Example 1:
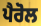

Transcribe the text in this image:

ਪੈਰੋਲ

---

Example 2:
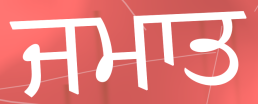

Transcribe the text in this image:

ਜਮਾਤ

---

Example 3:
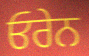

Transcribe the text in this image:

ਓਰੇਨ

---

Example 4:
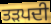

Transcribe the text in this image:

ਤੜਪਦੀ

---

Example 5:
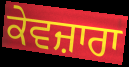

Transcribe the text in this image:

ਕੇਵਜ਼ਾਰਾ